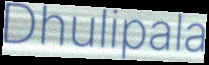
Dhulipala